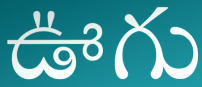
ఊగు